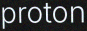
proton